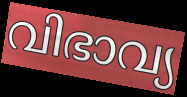
വിഭാവ്യ